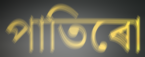
পাতিৰো